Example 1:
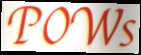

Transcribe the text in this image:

POWs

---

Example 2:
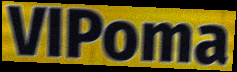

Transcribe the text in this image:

VIPoma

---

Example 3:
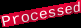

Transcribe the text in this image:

Processed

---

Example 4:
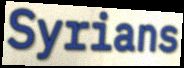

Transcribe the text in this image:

Syrians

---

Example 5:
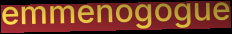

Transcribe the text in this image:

emmenogogue